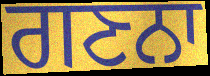
ਗਣਨਾ